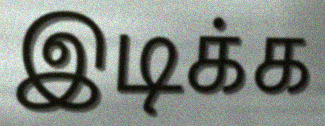
இடிக்க